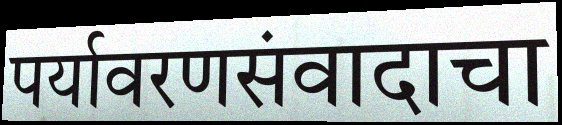
पर्यावरणसंवादाचा